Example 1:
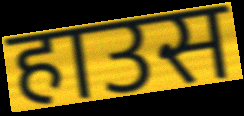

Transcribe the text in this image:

हाउस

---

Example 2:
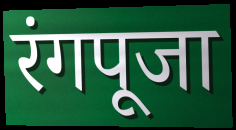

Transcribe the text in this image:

रंगपूजा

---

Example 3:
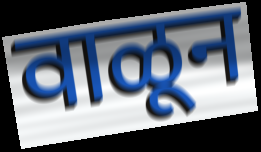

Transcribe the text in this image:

वाळून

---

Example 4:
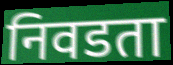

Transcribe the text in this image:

निवडता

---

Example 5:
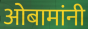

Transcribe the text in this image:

ओबामांनी